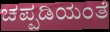
ಚಪ್ಪಡಿಯಂತೆ